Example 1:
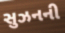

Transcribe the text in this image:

સુઝનની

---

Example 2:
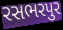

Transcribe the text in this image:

રસભરપુર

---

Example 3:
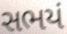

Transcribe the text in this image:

સભયં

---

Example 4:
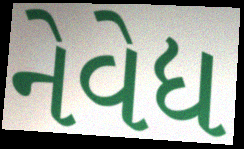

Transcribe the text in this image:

નેવેદ્ય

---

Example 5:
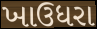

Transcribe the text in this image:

ખાઉધરા